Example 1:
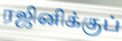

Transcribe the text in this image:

ரஜினிக்குப்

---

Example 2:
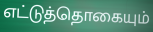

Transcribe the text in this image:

எட்டுத்தொகையும்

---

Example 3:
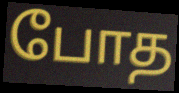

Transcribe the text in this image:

போத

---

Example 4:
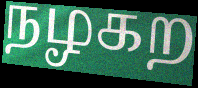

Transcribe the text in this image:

நழகற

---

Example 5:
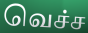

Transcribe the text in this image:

வெச்ச